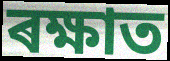
ৰক্ষাত